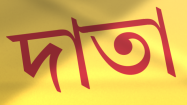
দাতা